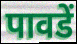
पावडें